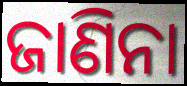
ଜାଣିନା